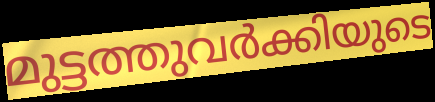
മുട്ടത്തുവർക്കിയുടെ